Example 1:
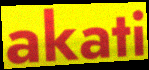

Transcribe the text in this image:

akati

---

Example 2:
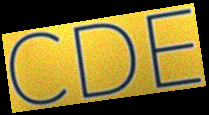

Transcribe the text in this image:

CDE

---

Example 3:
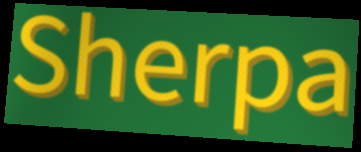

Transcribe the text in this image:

Sherpa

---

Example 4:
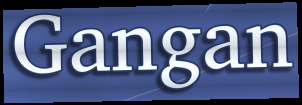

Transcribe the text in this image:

Gangan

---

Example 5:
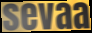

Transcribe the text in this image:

sevaa